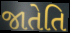
જાતેતિ